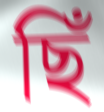
ছিঁ